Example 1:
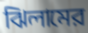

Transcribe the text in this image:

ঝিলামের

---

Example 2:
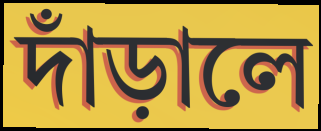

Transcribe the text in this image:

দাঁড়ালে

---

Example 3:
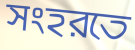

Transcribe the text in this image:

সংহরতে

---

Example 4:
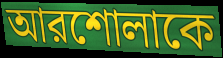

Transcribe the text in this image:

আরশোলাকে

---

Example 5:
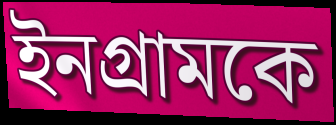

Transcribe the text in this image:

ইনগ্রামকে